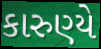
કારુણ્યે